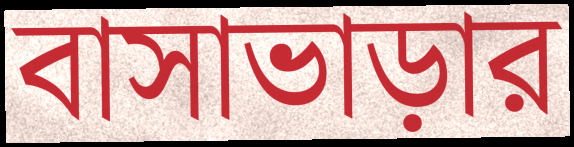
বাসাভাড়ার